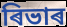
ৰিভাৰ